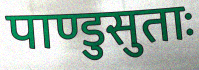
पाण्डुसुताः